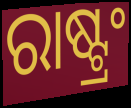
ରାଷ୍ଟ୍ରଂ